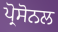
ਪ੍ਰੋਸੋਨਲ